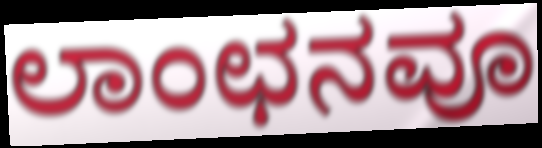
ಲಾಂಛನವೂ